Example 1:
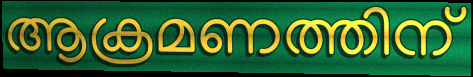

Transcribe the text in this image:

ആക്രമണത്തിന്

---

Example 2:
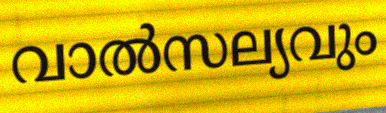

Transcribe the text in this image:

വാൽസല്യവും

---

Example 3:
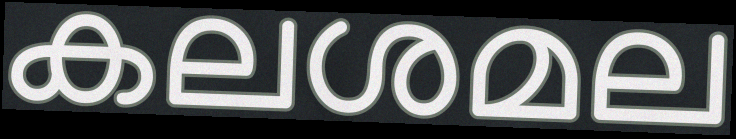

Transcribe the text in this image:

കലശമല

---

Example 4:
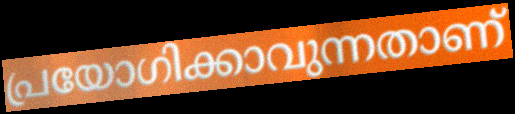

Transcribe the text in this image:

പ്രയോഗിക്കാവുന്നതാണ്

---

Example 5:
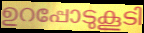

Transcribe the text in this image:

ഉറപ്പോടുകൂടി